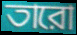
তারো